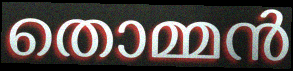
തൊമ്മൻ